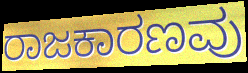
ರಾಜಕಾರಣವು